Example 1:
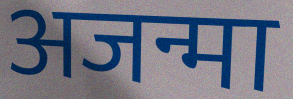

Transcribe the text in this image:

अजन्मा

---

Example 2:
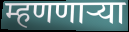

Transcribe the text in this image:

म्हणणाऱ्या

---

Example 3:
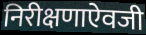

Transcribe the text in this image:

निरीक्षणाऐवजी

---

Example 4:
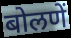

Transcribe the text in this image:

बोलणें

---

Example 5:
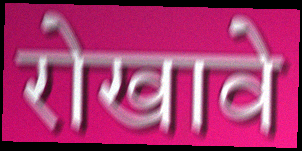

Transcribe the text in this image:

रोखावे